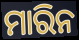
ମାରିନ